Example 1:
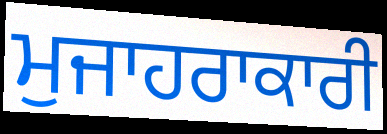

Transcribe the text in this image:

ਮੁਜਾਹਰਾਕਾਰੀ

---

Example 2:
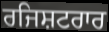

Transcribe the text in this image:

ਰਜਿਸ਼ਟਰਾਰ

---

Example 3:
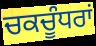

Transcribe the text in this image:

ਚਕਚੂੰਧਰਾਂ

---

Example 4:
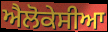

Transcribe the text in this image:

ਐਲੋਕੇਸੀਆ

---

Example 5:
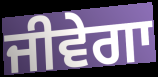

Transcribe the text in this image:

ਜੀਵੇਗਾ